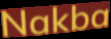
Nakba